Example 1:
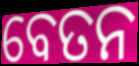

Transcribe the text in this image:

ବେତନ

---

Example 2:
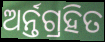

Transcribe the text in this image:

ଅର୍ନ୍ତଗ୍ରହିତ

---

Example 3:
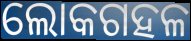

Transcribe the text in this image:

ଲୋକଗହଳ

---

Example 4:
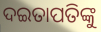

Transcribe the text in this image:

ଦଇତାପତିଙ୍କୁ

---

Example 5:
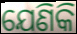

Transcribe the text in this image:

ଯେଣିକି